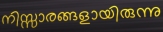
നിസ്സാരങ്ങളായിരുന്നു